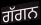
ਗੱਗਨ